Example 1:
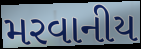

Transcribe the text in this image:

મરવાનીય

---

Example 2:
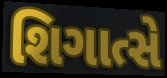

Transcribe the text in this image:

શિગાત્સે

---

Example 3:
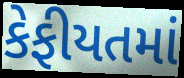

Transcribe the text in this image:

કેફીયતમાં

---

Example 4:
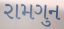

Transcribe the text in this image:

રામગુન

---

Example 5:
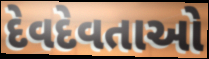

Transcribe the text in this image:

દેવદેવતાઓ